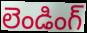
లెండింగ్